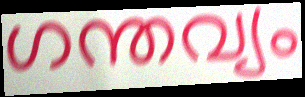
ഗന്തവ്യം